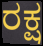
ರಕ್ಷ